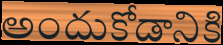
అందుకోడానికి